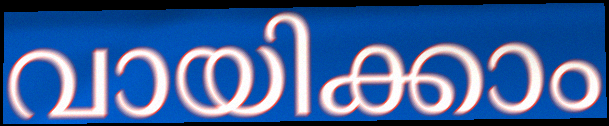
വായിക്കാം